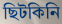
ছিটকিনি